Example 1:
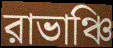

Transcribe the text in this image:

রাভাঞ্চি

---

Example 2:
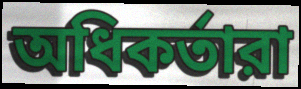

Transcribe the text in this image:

অধিকর্তারা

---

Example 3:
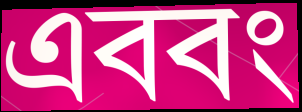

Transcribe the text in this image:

এববং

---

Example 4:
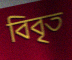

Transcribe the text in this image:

বিবৃত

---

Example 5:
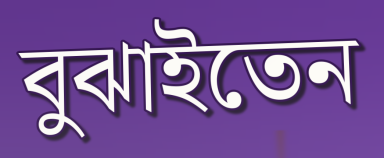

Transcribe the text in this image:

বুঝাইতেন